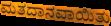
ಮತದಾನವಾಯಿತು